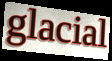
glacial